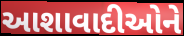
આશાવાદીઓને